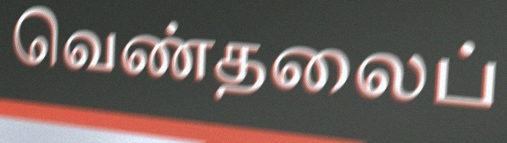
வெண்தலைப்